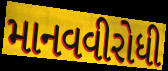
માનવવીરોધી